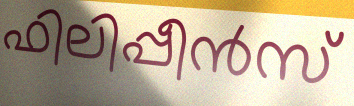
ഫിലിപ്പീൻസ്